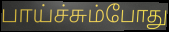
பாய்ச்சும்போது